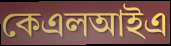
কেএলআইএ